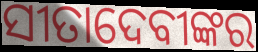
ସୀତାଦେବୀଙ୍କର